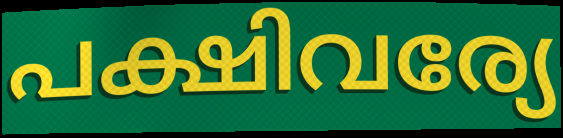
പക്ഷിവര്യേ